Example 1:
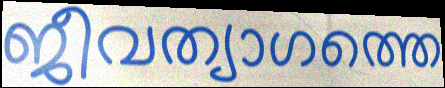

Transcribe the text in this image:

ജീവത്യാഗത്തെ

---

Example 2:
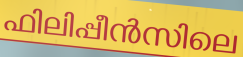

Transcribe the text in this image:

ഫിലിപ്പീൻസിലെ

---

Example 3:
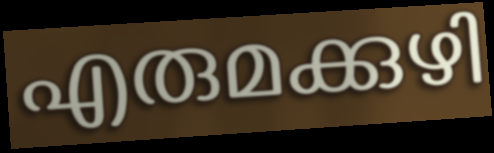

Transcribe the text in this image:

എരുമക്കുഴി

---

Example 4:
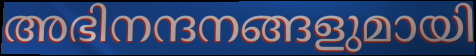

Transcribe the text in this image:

അഭിനന്ദനങ്ങളുമായി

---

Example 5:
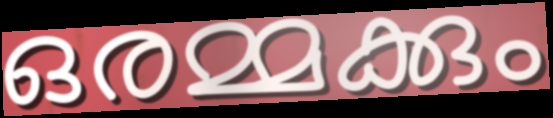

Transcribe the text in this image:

ഒരമ്മക്കും